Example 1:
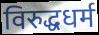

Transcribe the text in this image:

विरुद्धधर्म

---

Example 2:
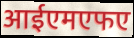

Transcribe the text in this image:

आईएमएफए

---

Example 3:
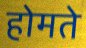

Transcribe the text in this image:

होमते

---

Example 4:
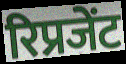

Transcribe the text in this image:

रिप्रजेंट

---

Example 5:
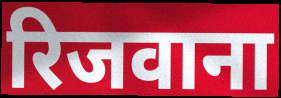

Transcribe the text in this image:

रिजवाना